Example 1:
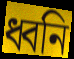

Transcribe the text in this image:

ধ্বনি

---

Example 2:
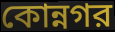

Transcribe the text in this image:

কোন্নগর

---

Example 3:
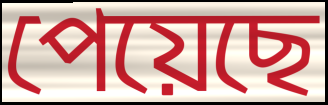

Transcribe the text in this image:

পেয়েছে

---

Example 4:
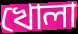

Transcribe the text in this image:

খোলা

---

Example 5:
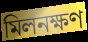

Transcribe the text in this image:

মিলনক্ষণ